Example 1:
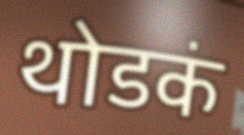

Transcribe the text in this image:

थोडकं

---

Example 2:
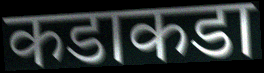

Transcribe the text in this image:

कडाकडा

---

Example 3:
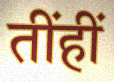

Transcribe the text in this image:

तींहीं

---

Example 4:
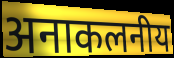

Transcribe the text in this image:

अनाकलनीय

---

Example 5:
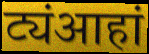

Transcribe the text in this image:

ट्यंआहां